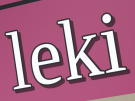
leki